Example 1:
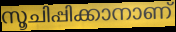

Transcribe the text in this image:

സൂചിപ്പിക്കാനാണ്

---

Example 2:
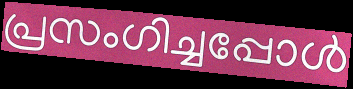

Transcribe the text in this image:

പ്രസംഗിച്ചപ്പോൾ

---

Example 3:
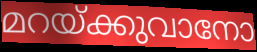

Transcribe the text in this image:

മറയ്ക്കുവാനോ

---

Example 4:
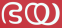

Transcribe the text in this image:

ഭയ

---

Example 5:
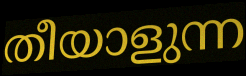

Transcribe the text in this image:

തീയാളുന്ന